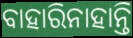
ବାହାରିନାହାନ୍ତି